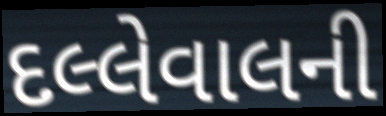
દલ્લેવાલની